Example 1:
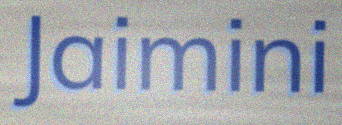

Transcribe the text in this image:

Jaimini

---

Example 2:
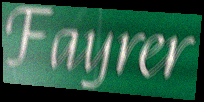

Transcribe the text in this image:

Fayrer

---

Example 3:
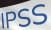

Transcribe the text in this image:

IPSS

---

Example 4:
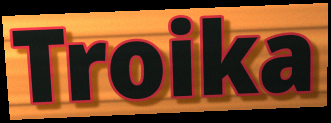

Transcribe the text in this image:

Troika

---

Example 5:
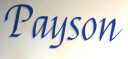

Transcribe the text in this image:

Payson